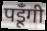
पडूँगी